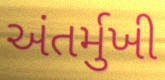
અંતર્મુખી